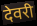
देवरी